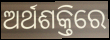
ଅର୍ଥଶକ୍ତିରେ